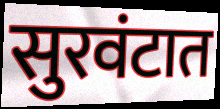
सुरवंटात